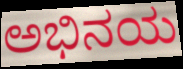
ಅಭಿನಯ